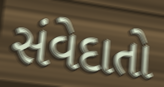
સંવેદાતો